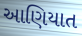
આણિયાત